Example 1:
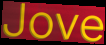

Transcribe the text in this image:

Jove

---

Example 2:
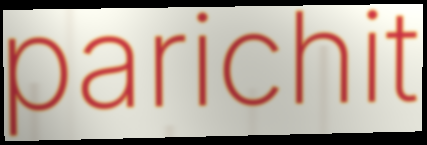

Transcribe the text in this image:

parichit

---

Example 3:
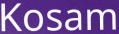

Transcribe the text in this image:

Kosam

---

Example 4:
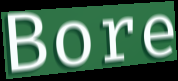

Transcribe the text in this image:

Bore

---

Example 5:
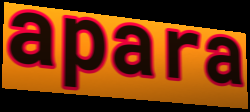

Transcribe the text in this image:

apara